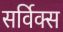
सर्विक्स